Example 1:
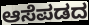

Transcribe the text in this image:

ಆಸೆಪಡದ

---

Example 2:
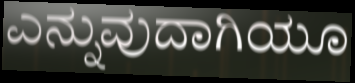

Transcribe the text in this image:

ಎನ್ನುವುದಾಗಿಯೂ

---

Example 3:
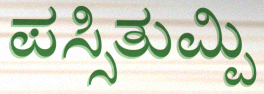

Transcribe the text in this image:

ಪಸ್ಸಿತುಮ್ಪಿ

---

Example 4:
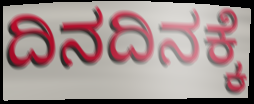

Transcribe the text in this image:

ದಿನದಿನಕ್ಕೆ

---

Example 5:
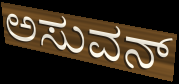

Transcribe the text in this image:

ಅಸುವನ್